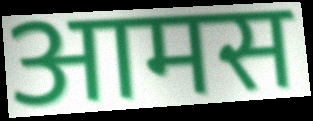
आमस